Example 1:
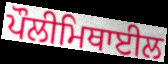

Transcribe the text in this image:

ਪੌਲੀਮਿਥਾਈਲ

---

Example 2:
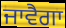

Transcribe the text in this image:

ਜਾਵੈਗਾ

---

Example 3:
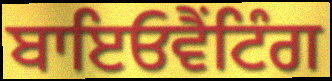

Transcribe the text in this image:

ਬਾਇਓਵੈਂਟਿੰਗ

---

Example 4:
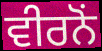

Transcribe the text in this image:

ਵੀਰਨੋਂ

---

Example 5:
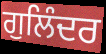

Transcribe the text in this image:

ਗੁਲਿੰਦਰ